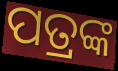
ପତ୍ରଙ୍କ